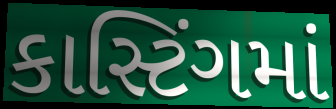
કાસ્ટિંગમાં